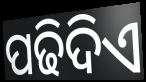
ପଢିଦିଏ